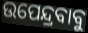
ଉପେନ୍ଦ୍ରବାବୁ